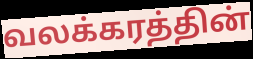
வலக்கரத்தின்